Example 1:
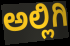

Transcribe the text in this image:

ಅಲ್ಲಿಗಿ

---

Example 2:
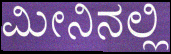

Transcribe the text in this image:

ಮೀನಿನಲ್ಲಿ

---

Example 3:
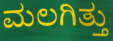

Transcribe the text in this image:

ಮಲಗಿತ್ತು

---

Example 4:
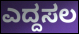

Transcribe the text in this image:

ಎದ್ದಸಲ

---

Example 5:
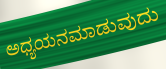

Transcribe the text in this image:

ಅಧ್ಯಯನಮಾಡುವುದು